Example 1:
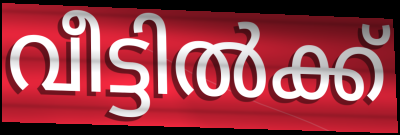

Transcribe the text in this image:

വീട്ടിൽക്ക്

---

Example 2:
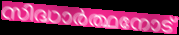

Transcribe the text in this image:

സിദ്ധാർത്ഥനോട്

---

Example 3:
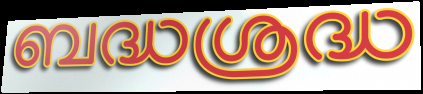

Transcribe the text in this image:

ബദ്ധശ്രദ്ധ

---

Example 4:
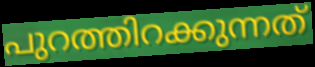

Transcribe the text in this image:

പുറത്തിറക്കുന്നത്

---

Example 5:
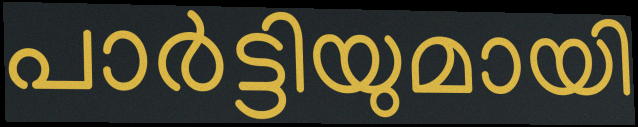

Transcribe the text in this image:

പാർട്ടിയുമായി